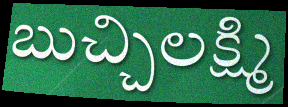
బుచ్చిలక్ష్మి